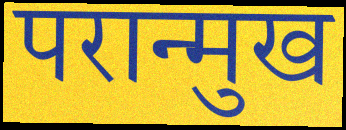
परान्मुख